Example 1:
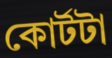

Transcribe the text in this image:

কোর্টটা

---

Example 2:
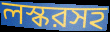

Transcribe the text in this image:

লস্করসহ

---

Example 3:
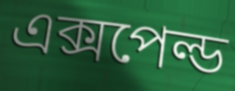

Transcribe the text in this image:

এক্সপেল্ড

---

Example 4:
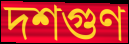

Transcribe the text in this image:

দশগুণ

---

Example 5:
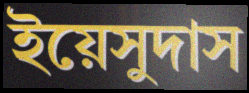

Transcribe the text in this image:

ইয়েসুদাস